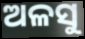
ଅଳସୁ